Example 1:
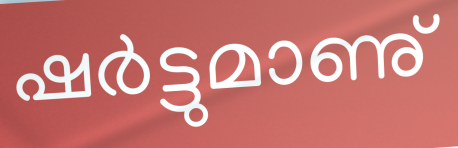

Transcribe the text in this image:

ഷർട്ടുമാണു്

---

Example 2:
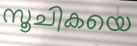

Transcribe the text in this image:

സൂചികയെ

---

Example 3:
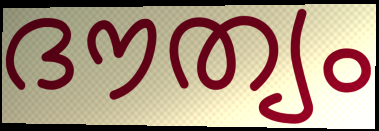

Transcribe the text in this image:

ദൗത്യം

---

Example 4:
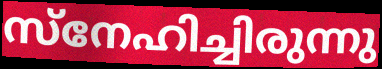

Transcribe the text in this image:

സ്നേഹിച്ചിരുന്നു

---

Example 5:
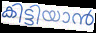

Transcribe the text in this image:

കിട്ടിയാൻ